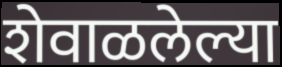
शेवाळलेल्या